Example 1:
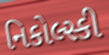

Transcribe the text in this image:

નિકોલ્સ્કી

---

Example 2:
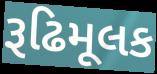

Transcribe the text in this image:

રૂઢિમૂલક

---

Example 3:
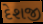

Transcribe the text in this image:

દેશજી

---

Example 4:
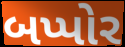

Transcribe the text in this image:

બપ્પોર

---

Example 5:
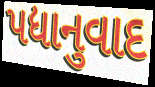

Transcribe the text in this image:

પદ્યાનુવાદ